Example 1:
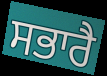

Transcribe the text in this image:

ਸਭਾਰੈ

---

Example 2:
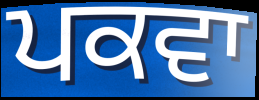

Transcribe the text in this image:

ਪਕਵਾ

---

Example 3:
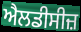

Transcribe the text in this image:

ਐਲਡੀਸੀਜ਼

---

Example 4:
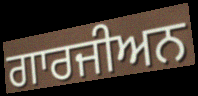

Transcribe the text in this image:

ਗਾਰਜੀਅਨ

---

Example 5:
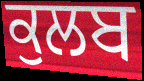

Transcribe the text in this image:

ਕੁਲਬ